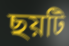
ছয়টি